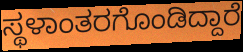
ಸ್ಥಳಾಂತರಗೊಂಡಿದ್ದಾರೆ